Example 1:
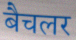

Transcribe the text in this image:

बैचलर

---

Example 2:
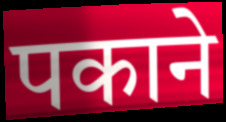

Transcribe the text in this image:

पकाने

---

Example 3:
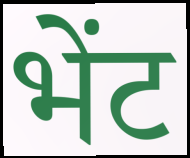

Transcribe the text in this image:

भेंट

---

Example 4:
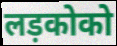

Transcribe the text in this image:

लड़कोको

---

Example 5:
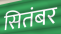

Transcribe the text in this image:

सितंबर